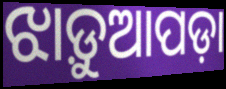
ଝାଡ଼ୁଆପଡ଼ା